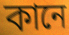
কানে